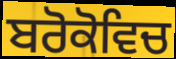
ਬਰੋਕੋਵਿਚ